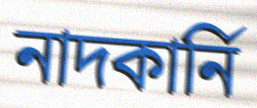
নাদকার্নি